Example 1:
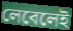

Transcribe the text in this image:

লেবেলেই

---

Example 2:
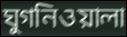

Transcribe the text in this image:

ঘুগনিওয়ালা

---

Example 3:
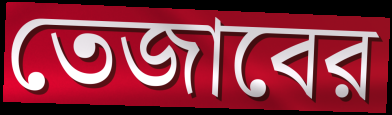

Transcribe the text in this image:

তেজাবের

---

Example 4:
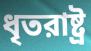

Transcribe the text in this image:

ধৃতরাষ্ট্র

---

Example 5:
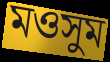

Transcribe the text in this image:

মওসুম